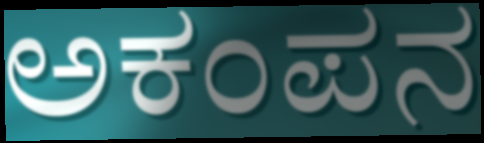
ಅಕಂಪನ